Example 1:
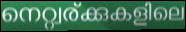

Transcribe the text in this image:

നെറ്റ്വര്ക്കുകളിലെ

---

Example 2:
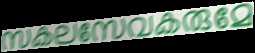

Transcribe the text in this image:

സകലസേവകരുമേ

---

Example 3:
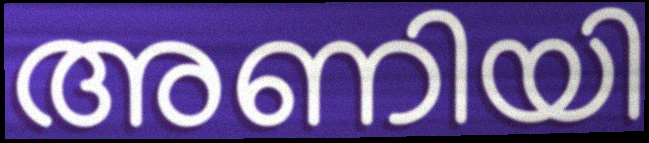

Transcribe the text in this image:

അണിയി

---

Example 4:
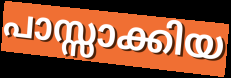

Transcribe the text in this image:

പാസ്സാക്കിയ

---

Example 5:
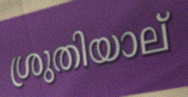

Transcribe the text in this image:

ശ്രുതിയാല്